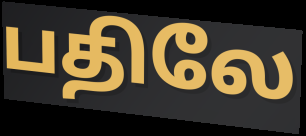
பதிலே